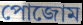
পোজোম